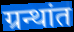
ग्रन्थांत